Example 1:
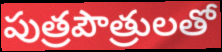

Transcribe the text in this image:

పుత్రపౌత్రులతో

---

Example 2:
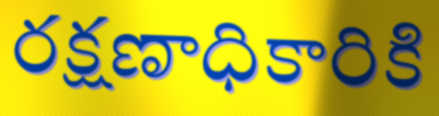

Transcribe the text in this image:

రక్షణాధికారికి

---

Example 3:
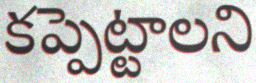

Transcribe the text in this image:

కప్పెట్టాలని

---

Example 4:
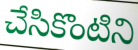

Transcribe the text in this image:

చేసికొంటిని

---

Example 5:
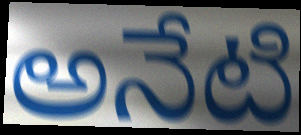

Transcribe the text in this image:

అనేటి